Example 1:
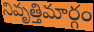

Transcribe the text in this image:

నివృత్తిమార్గం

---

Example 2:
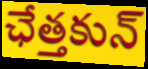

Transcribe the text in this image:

ఛేత్తకున్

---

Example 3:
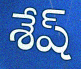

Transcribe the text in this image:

శేష్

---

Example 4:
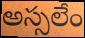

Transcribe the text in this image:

అస్సలేం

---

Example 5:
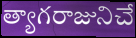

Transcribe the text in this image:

త్యాగరాజునిచే